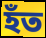
হঁত